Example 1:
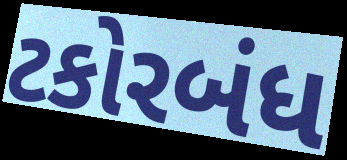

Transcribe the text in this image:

ટકોરબંધ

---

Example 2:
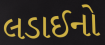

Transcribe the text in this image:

લડાઈનો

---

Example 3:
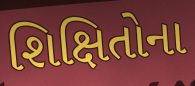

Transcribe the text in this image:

શિક્ષિતોના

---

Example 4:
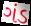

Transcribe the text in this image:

ગંડ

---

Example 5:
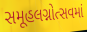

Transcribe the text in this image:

સમૂહલગ્નોત્સવમાં